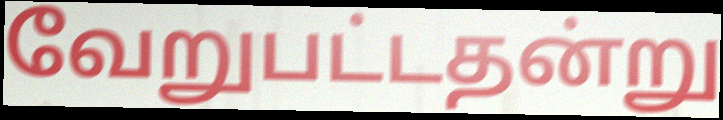
வேறுபட்டதன்று